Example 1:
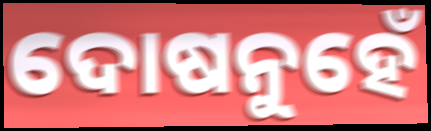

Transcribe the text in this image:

ଦୋଷନୁହେଁ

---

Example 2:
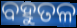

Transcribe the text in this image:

ବହୁତଳ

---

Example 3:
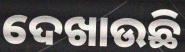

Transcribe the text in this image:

ଦେଖାଉଛି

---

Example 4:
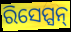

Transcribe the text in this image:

ରିସେପ୍ସନ୍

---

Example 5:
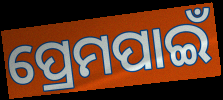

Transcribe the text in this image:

ପ୍ରେମପାଇଁ